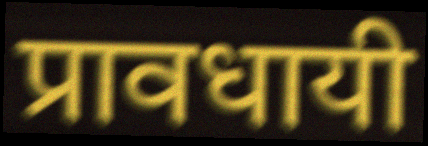
प्रावधायी